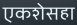
एकशेसहा